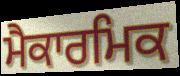
ਮੈਕਾਰਮਿਕ